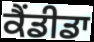
ਕੈਂਡੀਡਾ